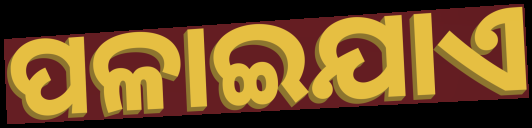
ପଳାଇଯାଏ